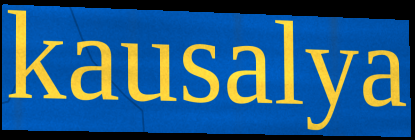
kausalya